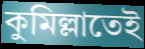
কুমিল্লাতেই